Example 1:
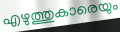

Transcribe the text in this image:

എഴുത്തുകാരെയും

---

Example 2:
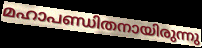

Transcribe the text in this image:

മഹാപണ്ഡിതനായിരുന്നു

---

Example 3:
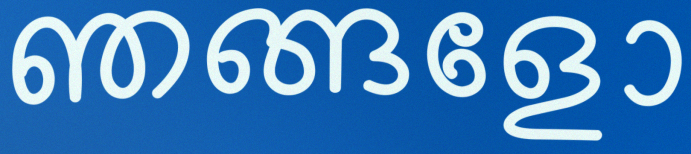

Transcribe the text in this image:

ഞങ്ങളോ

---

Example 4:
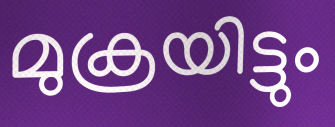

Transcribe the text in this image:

മുക്രയിട്ടും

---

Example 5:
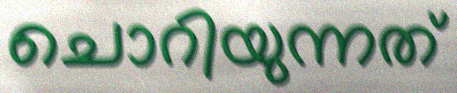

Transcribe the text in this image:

ചൊറിയുന്നത്